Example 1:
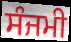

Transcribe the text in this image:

ਸੰਜਮੀ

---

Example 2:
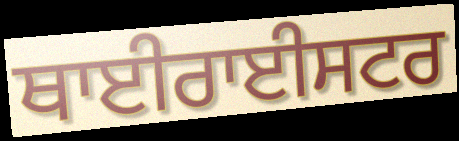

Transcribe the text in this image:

ਥਾਈਰਾਈਸਟਰ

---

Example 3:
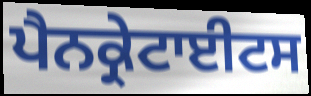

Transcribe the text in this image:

ਪੈਨਕ੍ਰੇਟਾਈਟਸ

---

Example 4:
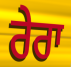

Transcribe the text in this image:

ਰੇਰਾ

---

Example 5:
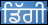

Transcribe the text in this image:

ਡਿੱਗੀ